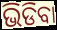
ଭିଡିବା